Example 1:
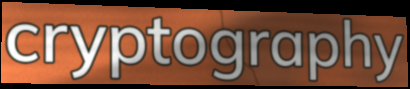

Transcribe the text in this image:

cryptography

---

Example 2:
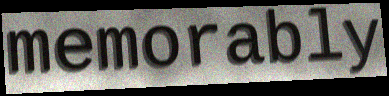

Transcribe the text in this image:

memorably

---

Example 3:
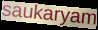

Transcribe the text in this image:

saukaryam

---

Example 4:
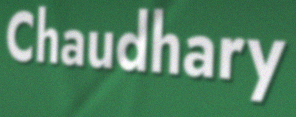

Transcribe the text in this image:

Chaudhary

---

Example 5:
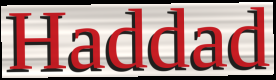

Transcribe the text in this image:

Haddad